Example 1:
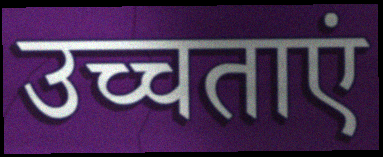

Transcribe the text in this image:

उच्चताएं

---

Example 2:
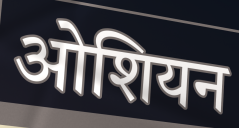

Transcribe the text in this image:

ओशियन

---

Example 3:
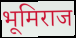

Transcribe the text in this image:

भूमिराज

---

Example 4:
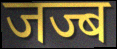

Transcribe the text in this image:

जज्ब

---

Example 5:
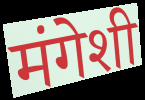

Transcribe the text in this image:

मंगेशी